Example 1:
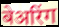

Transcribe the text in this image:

बेअरिंग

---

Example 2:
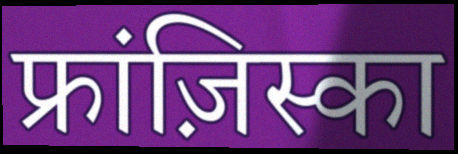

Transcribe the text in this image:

फ्रांज़िस्का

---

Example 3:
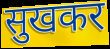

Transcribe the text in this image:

सुखकर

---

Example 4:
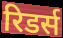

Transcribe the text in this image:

रिडर्स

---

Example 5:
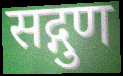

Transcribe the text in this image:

सद्गुण